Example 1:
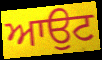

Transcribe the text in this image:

ਆਉਟ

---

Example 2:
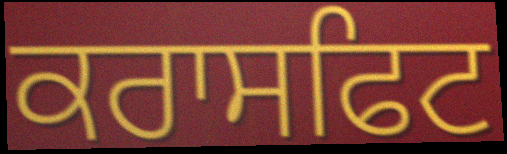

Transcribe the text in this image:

ਕਰਾਸਫਿਟ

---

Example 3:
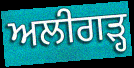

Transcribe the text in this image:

ਅਲੀਗੜ੍ਹ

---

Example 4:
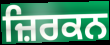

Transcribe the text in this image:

ਜ਼ਿਰਕਨ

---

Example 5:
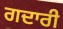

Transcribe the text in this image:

ਗਦਾਰੀ